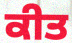
ਕੀਤ